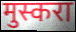
मुस्करा